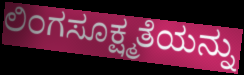
ಲಿಂಗಸೂಕ್ಷ್ಮತೆಯನ್ನು